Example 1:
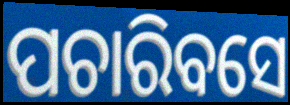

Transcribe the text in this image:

ପଚାରିବସେ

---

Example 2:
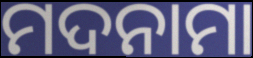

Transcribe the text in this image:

ମଦନାମା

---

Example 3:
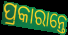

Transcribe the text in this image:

ପ୍ରକାରାନ୍ତେ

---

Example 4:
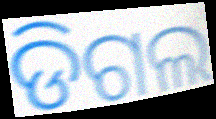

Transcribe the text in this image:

ଡିଗଲ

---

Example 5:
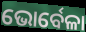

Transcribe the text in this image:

ଭୋର୍ବେଳା